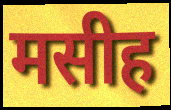
मसीह